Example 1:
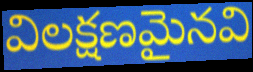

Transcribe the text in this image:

విలక్షణమైనవి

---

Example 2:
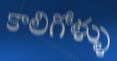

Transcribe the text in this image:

కాలిగోళ్ళు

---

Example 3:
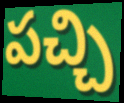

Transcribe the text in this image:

పచ్చి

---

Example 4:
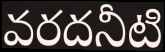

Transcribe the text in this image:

వరదనీటి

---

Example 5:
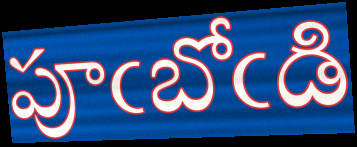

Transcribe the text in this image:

పూఁబోఁడి